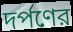
দর্পণের